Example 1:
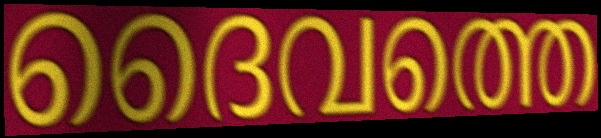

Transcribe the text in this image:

ദൈവത്തെ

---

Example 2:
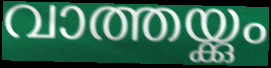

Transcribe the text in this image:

വാത്തയ്ക്കും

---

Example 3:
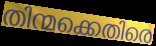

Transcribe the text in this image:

തിന്മക്കെതിരെ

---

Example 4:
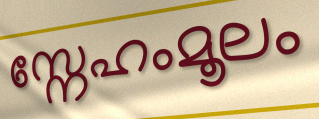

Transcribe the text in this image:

സ്നേഹംമൂലം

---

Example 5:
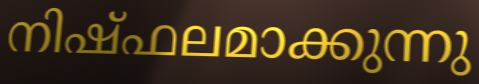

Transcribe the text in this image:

നിഷ്ഫലമാക്കുന്നു